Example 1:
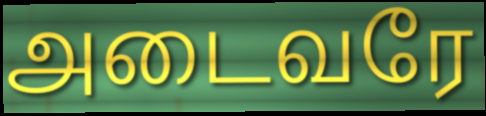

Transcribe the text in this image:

அடைவரே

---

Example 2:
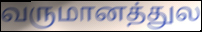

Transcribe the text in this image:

வருமானத்துல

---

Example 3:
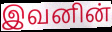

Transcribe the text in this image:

இவனின்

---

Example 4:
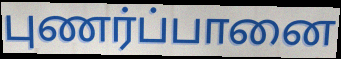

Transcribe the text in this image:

புணர்ப்பானை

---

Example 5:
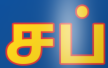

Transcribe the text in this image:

சப்